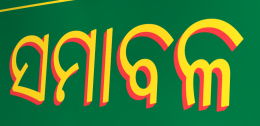
ସମାବଳ